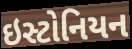
ઇસ્ટોનિયન